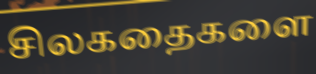
சிலகதைகளை